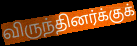
விருந்தினர்க்குக்